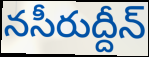
నసీరుద్దీన్